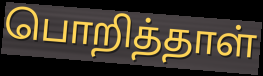
பொறித்தாள்